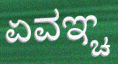
ಏವಞ್ಚ